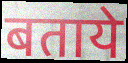
बताये